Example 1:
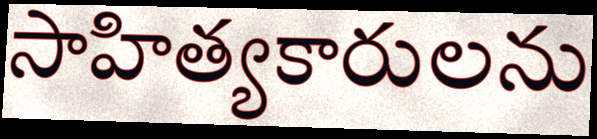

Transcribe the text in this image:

సాహిత్యకారులను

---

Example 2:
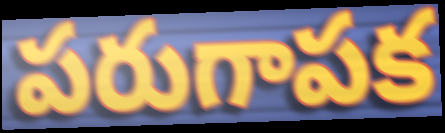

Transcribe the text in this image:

పరుగాపక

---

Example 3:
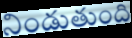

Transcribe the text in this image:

నిండుతుంది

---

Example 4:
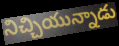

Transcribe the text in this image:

నిచ్చియున్నాడు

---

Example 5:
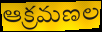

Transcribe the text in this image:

ఆక్రమణల